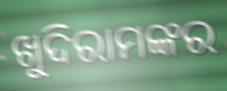
ଖୁଦିରାମଙ୍କର